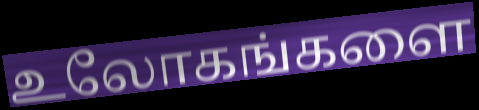
உலோகங்களை